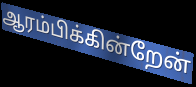
ஆரம்பிக்கின்றேன்